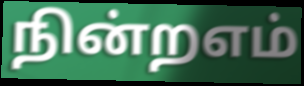
நின்றஎம்